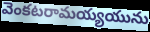
వెంకటరామయ్యయును